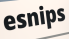
esnips